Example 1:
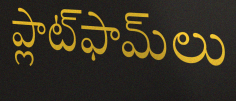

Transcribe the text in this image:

ప్లాట్‌ఫామ్‌లు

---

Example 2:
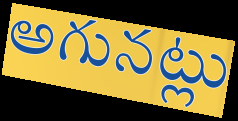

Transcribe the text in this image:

అగునట్లు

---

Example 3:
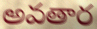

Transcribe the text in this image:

అవతార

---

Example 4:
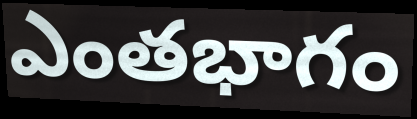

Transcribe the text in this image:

ఎంతభాగం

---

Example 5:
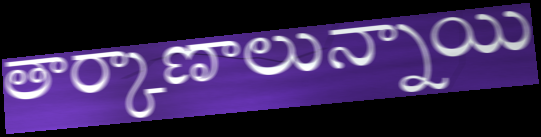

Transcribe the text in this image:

తార్కాణాలున్నాయి